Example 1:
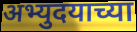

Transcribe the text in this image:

अभ्युदयाच्या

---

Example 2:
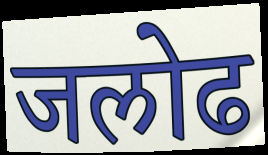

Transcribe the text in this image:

जलोढ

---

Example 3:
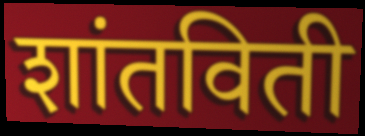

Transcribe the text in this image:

शांतविती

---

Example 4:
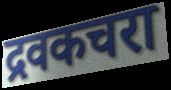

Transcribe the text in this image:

द्रवकचरा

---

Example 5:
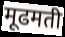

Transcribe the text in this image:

मूढमती